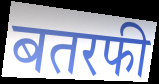
बतरफी